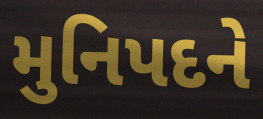
મુનિપદને